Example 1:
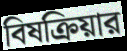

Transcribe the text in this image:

বিষক্রিয়ার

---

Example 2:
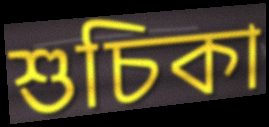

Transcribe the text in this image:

শুচিকা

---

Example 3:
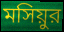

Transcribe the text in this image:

মসিয়ুর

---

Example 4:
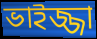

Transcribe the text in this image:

ভাইজ্জা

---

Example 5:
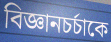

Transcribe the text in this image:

বিজ্ঞানচর্চাকে